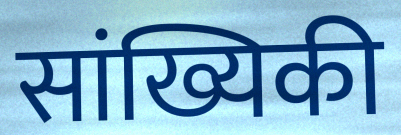
सांख्यिकी